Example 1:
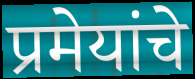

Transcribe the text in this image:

प्रमेयांचे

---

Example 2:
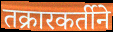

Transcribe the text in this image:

तक्रारकर्तीने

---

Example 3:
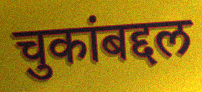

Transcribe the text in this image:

चुकांबद्दल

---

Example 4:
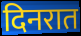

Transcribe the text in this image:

दिनरात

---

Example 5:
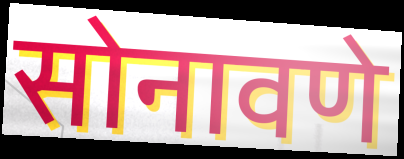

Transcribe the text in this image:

सोनावणे